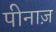
पीनाज़